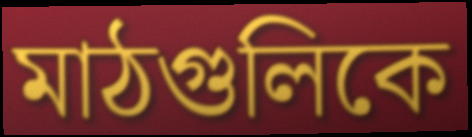
মাঠগুলিকে